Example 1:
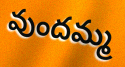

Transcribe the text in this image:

వుందమ్మ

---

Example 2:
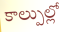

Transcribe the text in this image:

కాల్పుల్లో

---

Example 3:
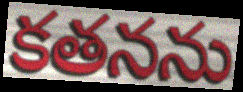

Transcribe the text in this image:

కతనను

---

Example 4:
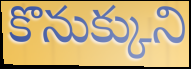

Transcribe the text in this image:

కొనుక్కుని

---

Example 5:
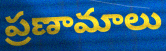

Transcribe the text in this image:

ప్రణామాలు